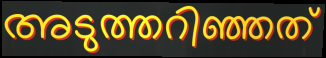
അടുത്തറിഞ്ഞത്